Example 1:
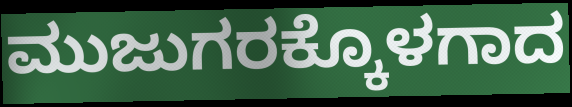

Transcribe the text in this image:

ಮುಜುಗರಕ್ಕೊಳಗಾದ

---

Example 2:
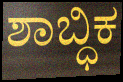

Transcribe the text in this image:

ಶಾಬ್ಧಿಕ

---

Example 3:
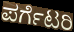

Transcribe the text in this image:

ಪರ್ಗೆಟರಿ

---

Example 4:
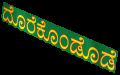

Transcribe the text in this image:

ದೊರೆಕೊಂಡೊಡೆ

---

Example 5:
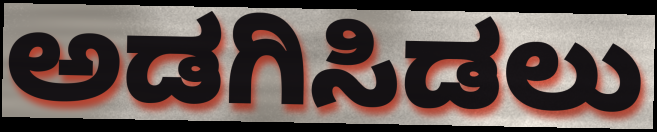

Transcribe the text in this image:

ಅಡಗಿಸಿಡಲು